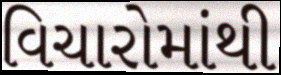
વિચારોમાંથી